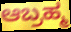
ಆಬ್ರಹ್ಮ